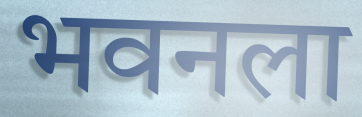
भवनला